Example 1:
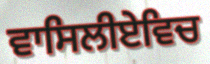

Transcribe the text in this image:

ਵਾਸਿਲੀਏਵਿਚ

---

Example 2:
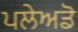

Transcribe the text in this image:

ਪਲੇਅਡੋ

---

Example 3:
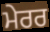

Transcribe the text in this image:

ਮੇਰਰ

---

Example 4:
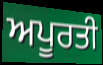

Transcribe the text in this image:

ਅਪੂਰਤੀ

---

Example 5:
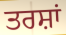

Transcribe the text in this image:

ਤਰਸ਼ਾਂ